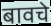
बावचे